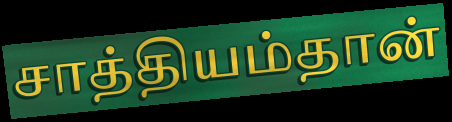
சாத்தியம்தான்